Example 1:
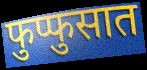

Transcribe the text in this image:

फुप्फुसात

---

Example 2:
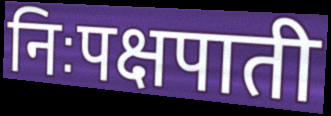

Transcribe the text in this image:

निःपक्षपाती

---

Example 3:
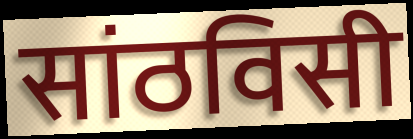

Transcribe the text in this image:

सांठविसी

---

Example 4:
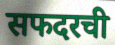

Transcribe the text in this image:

सफदरची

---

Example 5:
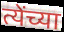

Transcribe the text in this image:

त्येंच्या